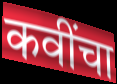
कवींचा